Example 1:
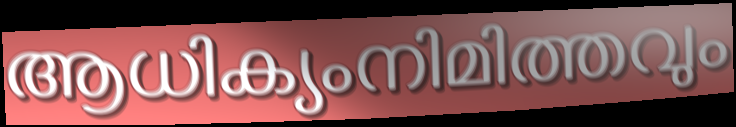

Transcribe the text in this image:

ആധിക്യംനിമിത്തവും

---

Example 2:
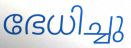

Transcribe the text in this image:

ഭേധിച്ചു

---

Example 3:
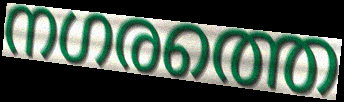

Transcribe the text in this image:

നഗരത്തെ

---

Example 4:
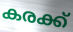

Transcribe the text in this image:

കരക്ക്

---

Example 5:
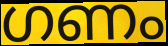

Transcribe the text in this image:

ഗണം